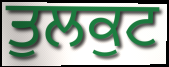
ਤੁਲਕੁਟ